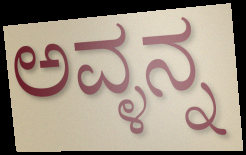
ಅವ್ಳನ್ನ